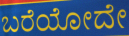
ಬರೆಯೋದೇ